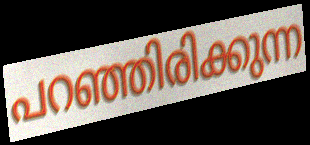
പറഞ്ഞിരിക്കുന്ന